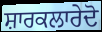
ਸ਼ਾਰਕਲਾਰੇਦੋ